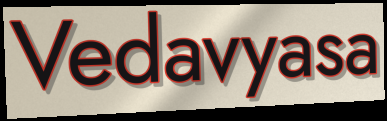
Vedavyasa